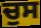
ਚੁਸ